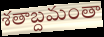
శతాబ్దమంతా